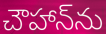
చౌహాన్‌ను